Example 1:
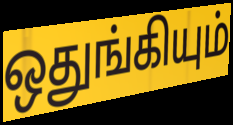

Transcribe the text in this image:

ஒதுங்கியும்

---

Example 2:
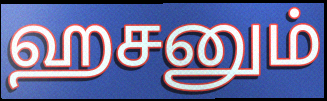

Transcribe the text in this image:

ஹசனும்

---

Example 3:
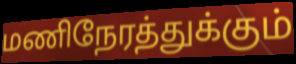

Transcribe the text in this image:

மணிநேரத்துக்கும்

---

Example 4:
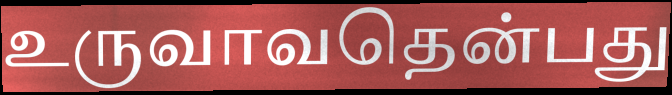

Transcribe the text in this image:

உருவாவதென்பது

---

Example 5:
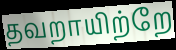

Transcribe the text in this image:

தவறாயிற்றே